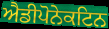
ਐਡੀਪੋਨੇਕਟਿਨ